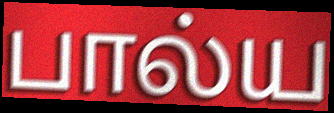
பால்ய